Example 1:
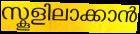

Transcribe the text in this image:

സ്കൂളിലാക്കാൻ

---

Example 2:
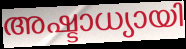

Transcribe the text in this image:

അഷ്ടാധ്യായി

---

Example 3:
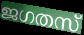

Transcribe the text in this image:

ജഗതസ്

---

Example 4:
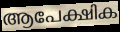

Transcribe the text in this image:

ആപേക്ഷിക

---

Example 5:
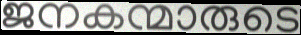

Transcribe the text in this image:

ജനകന്മാരുടെ